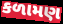
કળામણ